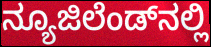
ನ್ಯೂಜಿಲೆಂಡ್‌ನಲ್ಲಿ